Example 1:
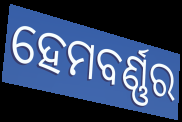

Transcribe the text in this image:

ହେମବର୍ଣ୍ଣର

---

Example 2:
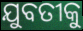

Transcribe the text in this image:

ଯୁବତୀକୁ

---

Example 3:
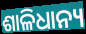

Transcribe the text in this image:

ଶାଳିଧାନ୍ୟ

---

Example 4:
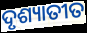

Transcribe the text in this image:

ଦୃଶ୍ୟାତୀତ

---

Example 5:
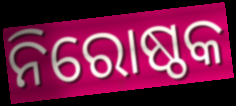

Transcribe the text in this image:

ନିରୋଷ୍ଠକ